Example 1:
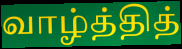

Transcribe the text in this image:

வாழ்த்தித்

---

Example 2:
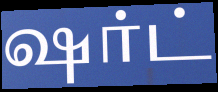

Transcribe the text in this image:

ஷர்ட்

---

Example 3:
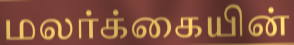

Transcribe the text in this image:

மலர்க்கையின்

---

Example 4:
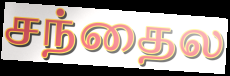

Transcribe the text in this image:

சந்தைல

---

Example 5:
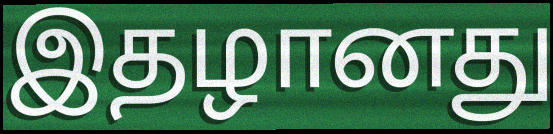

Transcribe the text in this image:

இதழானது